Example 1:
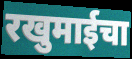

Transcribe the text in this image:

रखुमाईचा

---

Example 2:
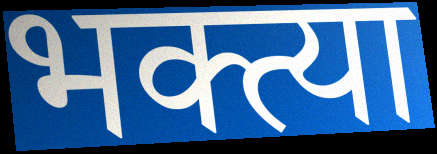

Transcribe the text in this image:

भक्त्या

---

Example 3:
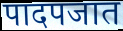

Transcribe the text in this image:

पादपजात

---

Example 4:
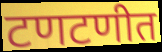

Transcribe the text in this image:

टणटणीत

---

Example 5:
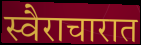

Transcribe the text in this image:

स्वैराचारात